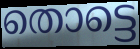
തൊട്ടെ